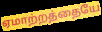
ஏமாற்றத்தையே